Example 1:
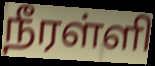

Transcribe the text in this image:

நீரள்ளி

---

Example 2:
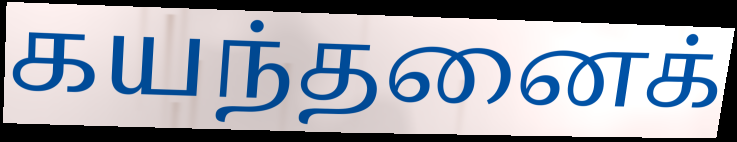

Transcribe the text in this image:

கயந்தனைக்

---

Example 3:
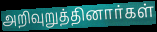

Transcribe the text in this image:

அறிவுறுத்தினார்கள்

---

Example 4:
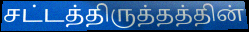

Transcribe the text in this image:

சட்டத்திருத்தத்தின்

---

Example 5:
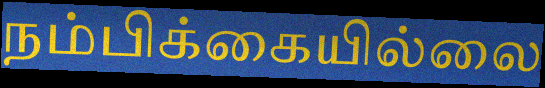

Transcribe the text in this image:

நம்பிக்கையில்லை